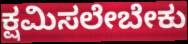
ಕ್ಷಮಿಸಲೇಬೇಕು